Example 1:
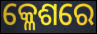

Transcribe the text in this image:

କ୍ଳେଶରେ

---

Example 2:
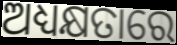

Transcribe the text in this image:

ଅଧ୍ଯକ୍ଷତାରେ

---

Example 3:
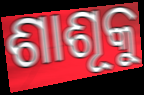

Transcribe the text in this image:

ଶାଶୂକୁ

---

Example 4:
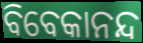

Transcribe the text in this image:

ବିବେକାନନ୍ଦ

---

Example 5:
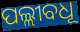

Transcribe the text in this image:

ପଲ୍ଲୀବଧୂ